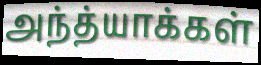
அந்த்யாக்கள்